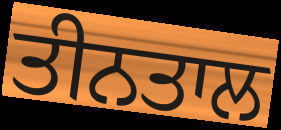
ਤੀਨਤਾਲ